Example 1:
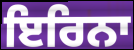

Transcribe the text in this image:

ਇਰਿਨਾ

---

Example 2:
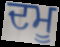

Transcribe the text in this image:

ਦਮੂ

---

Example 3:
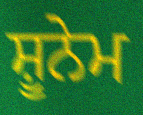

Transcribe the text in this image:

ਸ਼ੂਨੇਮ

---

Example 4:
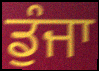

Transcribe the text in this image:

ਡੁੰਜਾ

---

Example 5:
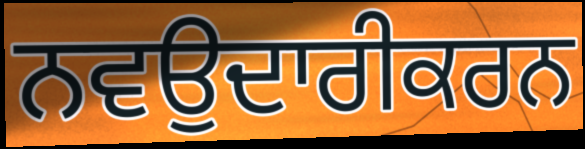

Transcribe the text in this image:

ਨਵਉਦਾਰੀਕਰਨ